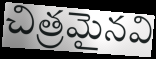
చిత్రమైనవి